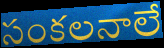
సంకలనాలే